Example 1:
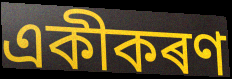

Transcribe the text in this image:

একীকৰণ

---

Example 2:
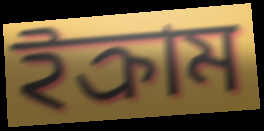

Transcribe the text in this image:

ইক্ৰাম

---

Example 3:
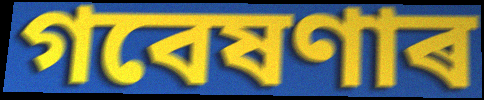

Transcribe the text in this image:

গবেষণাৰ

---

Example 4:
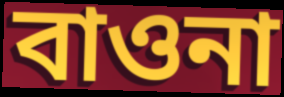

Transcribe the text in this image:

বাওনা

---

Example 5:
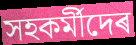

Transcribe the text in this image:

সহকৰ্মীদেৰ